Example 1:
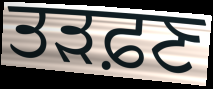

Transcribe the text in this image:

ਤੜਫ਼ਣ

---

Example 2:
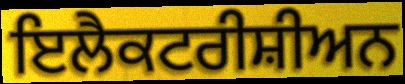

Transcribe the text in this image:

ਇਲੈਕਟਰੀਸ਼ੀਅਨ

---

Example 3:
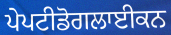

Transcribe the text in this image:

ਪੇਪਟੀਡੋਗਲਾਈਕਨ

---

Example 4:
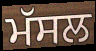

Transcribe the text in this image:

ਮੱਸਲ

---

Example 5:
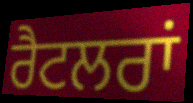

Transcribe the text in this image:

ਰੈਟਲਰਾਂ